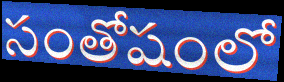
సంతోషంలో